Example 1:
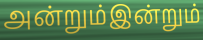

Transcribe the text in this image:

அன்றும்இன்றும்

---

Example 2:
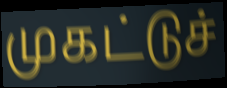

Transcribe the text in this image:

முகட்டுச்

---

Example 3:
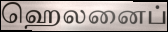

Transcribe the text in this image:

ஹெலனைப்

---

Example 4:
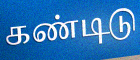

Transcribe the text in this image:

கண்டிடு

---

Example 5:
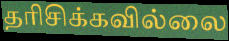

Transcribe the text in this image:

தரிசிக்கவில்லை